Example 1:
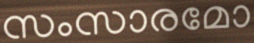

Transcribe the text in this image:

സംസാരമോ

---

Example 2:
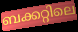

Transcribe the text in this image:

ബക്കറ്റിലെ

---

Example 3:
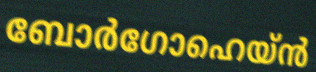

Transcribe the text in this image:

ബോർഗോഹെയ്ൻ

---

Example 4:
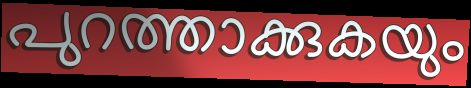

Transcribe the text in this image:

പുറത്താക്കുകയും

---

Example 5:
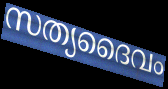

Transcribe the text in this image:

സത്യദൈവം